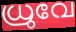
ധ്രുവേ